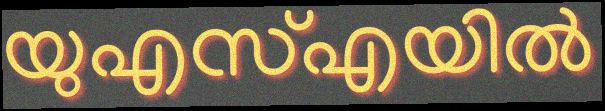
യുഎസ്എയിൽ